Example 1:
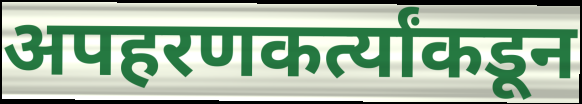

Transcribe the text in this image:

अपहरणकर्त्यांकडून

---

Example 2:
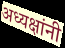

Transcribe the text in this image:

अध्यक्षांनी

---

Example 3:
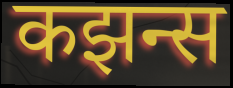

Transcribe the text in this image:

कझन्स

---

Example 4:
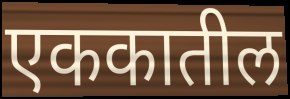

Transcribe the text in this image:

एककातील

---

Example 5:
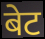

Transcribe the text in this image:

बेट